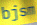
bjsm